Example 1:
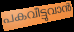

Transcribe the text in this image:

പകവീട്ടുവാൻ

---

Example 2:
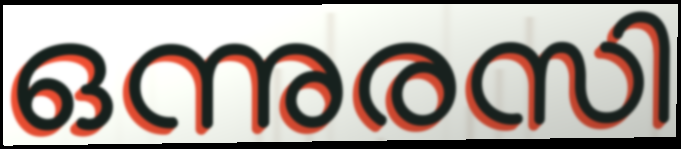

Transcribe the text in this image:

ഒന്നുരസി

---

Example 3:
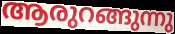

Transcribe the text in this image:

ആരുറങ്ങുന്നു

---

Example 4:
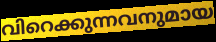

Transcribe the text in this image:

വിറെക്കുന്നവനുമായ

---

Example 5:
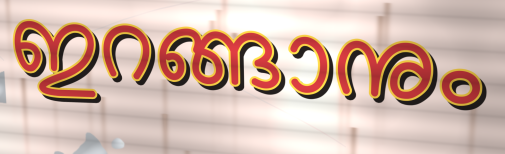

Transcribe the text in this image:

ഇറങ്ങാനും